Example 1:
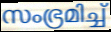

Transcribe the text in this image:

സംഭ്രമിച്ച്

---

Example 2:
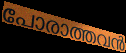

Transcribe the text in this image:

പോരാത്തവൻ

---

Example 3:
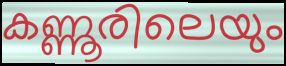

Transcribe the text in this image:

കണ്ണൂരിലെയും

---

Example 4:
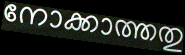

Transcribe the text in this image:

നോക്കാത്തതു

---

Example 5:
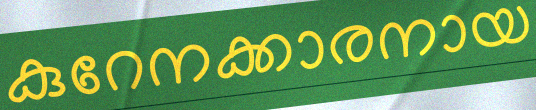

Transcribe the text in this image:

കുറേനക്കാരനായ